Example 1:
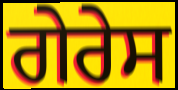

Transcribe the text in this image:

ਗੇਰੇਸ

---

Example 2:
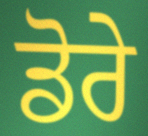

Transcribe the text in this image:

ਡੋਰੇ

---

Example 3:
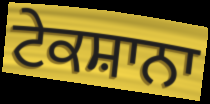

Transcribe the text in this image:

ਟੇਕਸ਼ਾਨਾ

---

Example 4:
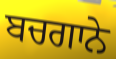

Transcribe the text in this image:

ਬਚਗਾਨੇ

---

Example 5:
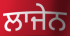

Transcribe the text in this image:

ਲਾਜੇਨ